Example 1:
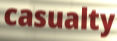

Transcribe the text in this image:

casualty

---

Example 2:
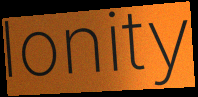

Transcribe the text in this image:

Ionity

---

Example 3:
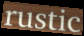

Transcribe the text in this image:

rustic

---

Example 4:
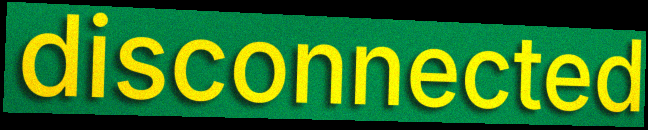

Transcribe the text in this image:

disconnected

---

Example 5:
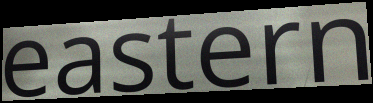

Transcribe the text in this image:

eastern